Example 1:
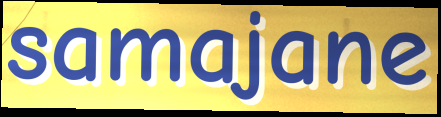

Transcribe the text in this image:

samajane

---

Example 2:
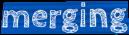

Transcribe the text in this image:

merging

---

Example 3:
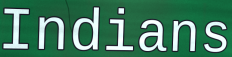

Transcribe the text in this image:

Indians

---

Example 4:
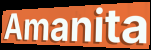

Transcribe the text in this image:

Amanita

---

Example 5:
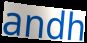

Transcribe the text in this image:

andh